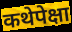
कथेपेक्षा